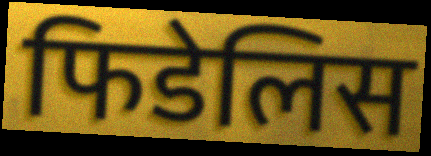
फिडेलिस